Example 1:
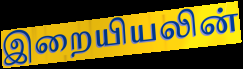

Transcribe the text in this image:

இறையியலின்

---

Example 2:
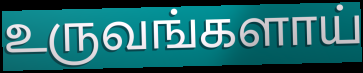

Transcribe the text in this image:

உருவங்களாய்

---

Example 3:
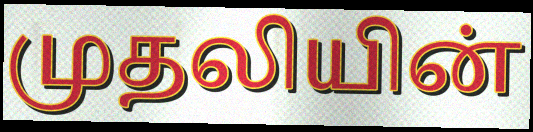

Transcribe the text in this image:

முதலியின்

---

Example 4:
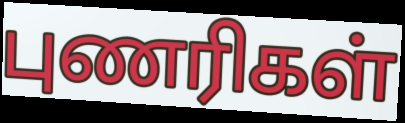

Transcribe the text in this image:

புணரிகள்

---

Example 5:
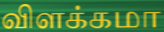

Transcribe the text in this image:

விளக்கமா